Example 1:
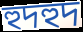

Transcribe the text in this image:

হুদহুদ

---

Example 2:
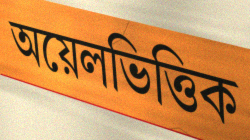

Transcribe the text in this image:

অয়েলভিত্তিক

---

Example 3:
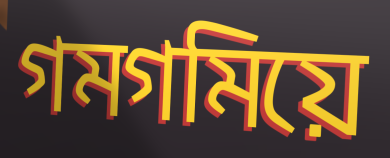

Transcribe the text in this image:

গমগমিয়ে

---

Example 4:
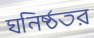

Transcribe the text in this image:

ঘনিষ্ঠতর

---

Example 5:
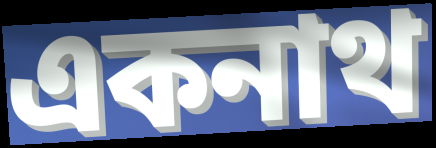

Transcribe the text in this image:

একনাথ